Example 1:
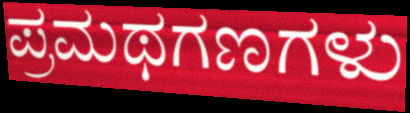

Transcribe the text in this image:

ಪ್ರಮಥಗಣಗಳು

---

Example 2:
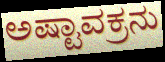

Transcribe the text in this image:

ಅಷ್ಟಾವಕ್ರನು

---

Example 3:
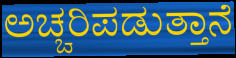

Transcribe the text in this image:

ಅಚ್ಚರಿಪಡುತ್ತಾನೆ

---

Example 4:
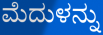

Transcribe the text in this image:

ಮೆದುಳನ್ನು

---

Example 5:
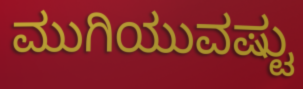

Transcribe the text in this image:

ಮುಗಿಯುವಷ್ಟು